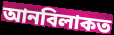
আনবিলাকত